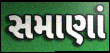
સમાણાં